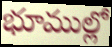
భూముల్లో